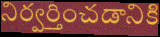
నిర్వర్తించడానికి